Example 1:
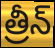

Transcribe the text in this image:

త్రీన్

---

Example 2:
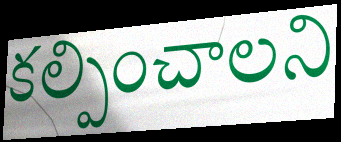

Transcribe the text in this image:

కల్పించాలని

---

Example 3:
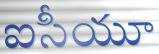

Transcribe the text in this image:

ఐసీయూ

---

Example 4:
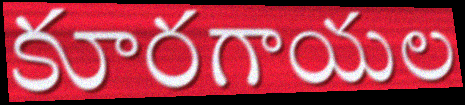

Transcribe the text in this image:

కూరగాయల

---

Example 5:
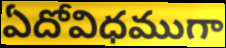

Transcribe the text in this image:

ఏదోవిధముగా